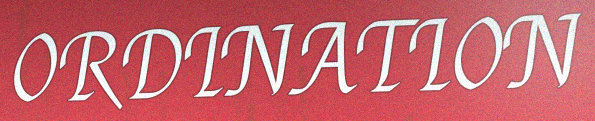
ORDINATION